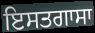
ਇਸਤਗਾਸਾ